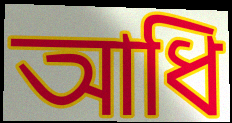
আধি